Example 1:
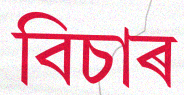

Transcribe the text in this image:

বিচাৰ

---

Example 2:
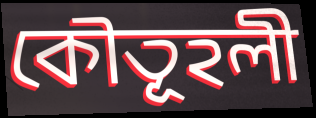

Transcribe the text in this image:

কৌতূহলী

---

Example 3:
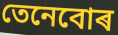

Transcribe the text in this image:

তেনেবোৰ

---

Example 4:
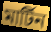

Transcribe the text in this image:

মাৰ্টিন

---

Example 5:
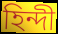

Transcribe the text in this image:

হিন্দী